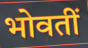
भोवतीं